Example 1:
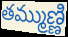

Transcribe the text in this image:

తమ్ముణ్ణి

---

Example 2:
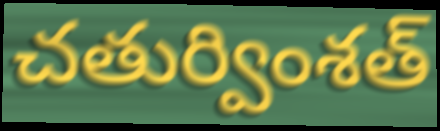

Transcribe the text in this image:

చతుర్వింశత్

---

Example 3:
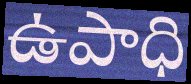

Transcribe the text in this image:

ఉపాధి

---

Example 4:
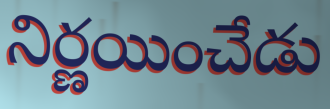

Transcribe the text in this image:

నిర్ణయించేడు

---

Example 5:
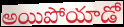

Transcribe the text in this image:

అయిపోయాడో